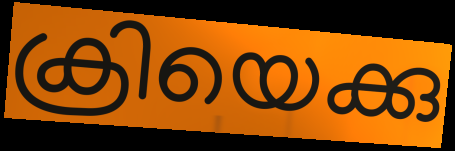
ക്രിയെക്കു